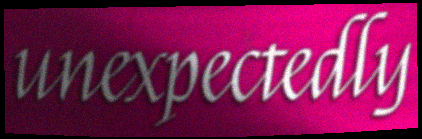
unexpectedly